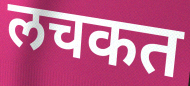
लचकत